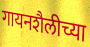
गायनशैलीच्या